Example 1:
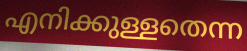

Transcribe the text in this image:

എനിക്കുള്ളതെന്ന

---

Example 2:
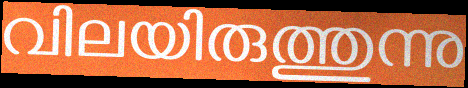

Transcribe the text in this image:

വിലയിരുത്തുന്നു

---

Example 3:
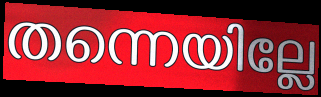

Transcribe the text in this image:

തന്നെയില്ലേ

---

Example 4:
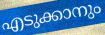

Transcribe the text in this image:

എടുക്കാനും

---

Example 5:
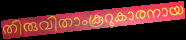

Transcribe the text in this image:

തിരുവിതാംകൂറുകാരനായ